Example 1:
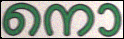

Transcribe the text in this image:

നൊ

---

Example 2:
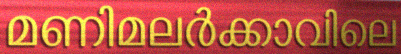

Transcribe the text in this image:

മണിമലർക്കാവിലെ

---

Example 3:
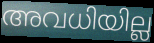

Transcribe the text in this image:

അവധിയില്ല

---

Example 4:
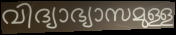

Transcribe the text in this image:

വിദ്യാഭ്യാസമുള്ള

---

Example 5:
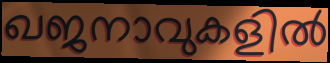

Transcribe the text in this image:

ഖജനാവുകളിൽ